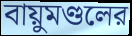
বায়ুমণ্ডলের